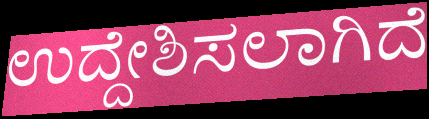
ಉದ್ದೇಶಿಸಲಾಗಿದೆ